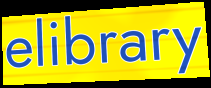
elibrary